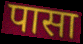
पासा